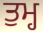
ਤੁਮ੍ਹ੍ਹ